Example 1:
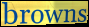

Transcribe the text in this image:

browns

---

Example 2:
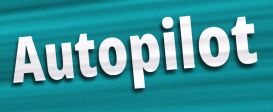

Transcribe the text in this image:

Autopilot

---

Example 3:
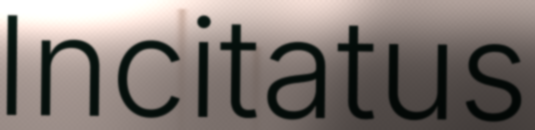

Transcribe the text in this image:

Incitatus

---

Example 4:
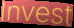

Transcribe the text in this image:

Invest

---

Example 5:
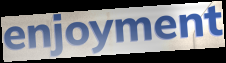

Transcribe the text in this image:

enjoyment